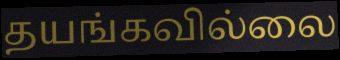
தயங்கவில்லை